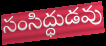
సంసిద్ధుడవు